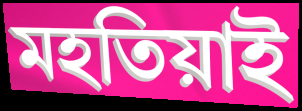
মহতিয়াই